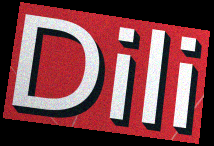
Dili